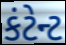
કંટેન્ટ